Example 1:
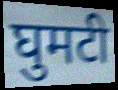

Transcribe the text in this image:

घुमटी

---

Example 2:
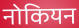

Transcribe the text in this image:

नोकियन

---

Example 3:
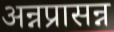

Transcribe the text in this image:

अन्नप्रासन्न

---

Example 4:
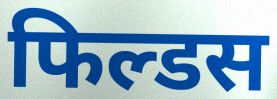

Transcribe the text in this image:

फिल्डस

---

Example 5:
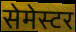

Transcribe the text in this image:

सेमेस्टर